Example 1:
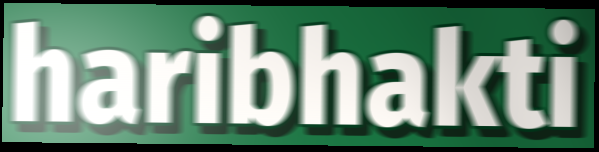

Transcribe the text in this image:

haribhakti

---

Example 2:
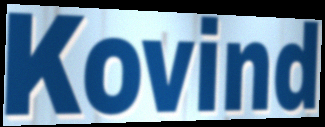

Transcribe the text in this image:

Kovind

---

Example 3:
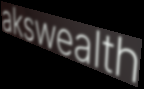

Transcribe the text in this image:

akswealth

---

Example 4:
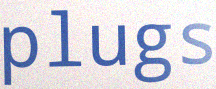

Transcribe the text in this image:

plugs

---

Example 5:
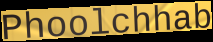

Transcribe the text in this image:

Phoolchhab